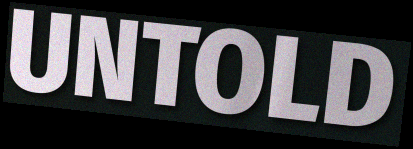
UNTOLD